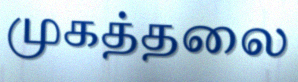
முகத்தலை